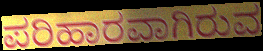
ಪರಿಹಾರವಾಗಿರುವ